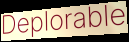
Deplorable